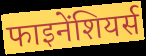
फाइनेंशियर्स